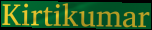
Kirtikumar